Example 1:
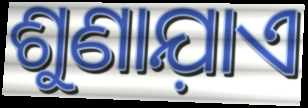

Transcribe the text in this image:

ଶୁଣାଯ଼ାଏ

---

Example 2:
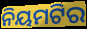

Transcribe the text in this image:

ନିୟମଟିର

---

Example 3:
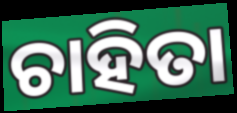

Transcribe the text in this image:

ଚାହିତା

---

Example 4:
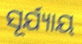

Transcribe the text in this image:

ସୂର୍ଯ୍ୟାୟ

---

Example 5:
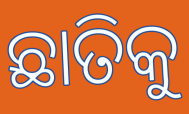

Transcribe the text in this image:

ଛାତିକୁ